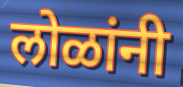
लोळांनी